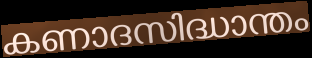
കണാദസിദ്ധാന്തം